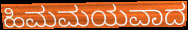
ಹಿಮಮಯವಾದ